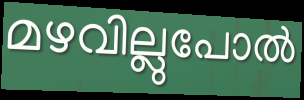
മഴവില്ലുപോൽ